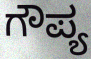
ಗೌಪ್ಯ